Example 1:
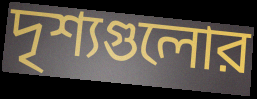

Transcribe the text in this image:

দৃশ্যগুলোর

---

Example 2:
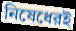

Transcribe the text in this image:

নিষেধেরই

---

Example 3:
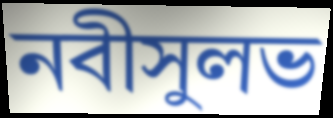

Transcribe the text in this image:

নবীসুলভ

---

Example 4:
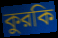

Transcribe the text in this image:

কুরকি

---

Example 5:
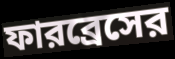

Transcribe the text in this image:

ফারব্রেসের